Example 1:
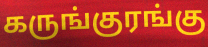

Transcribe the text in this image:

கருங்குரங்கு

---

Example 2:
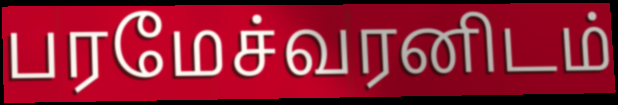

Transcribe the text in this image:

பரமேச்வரனிடம்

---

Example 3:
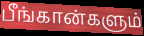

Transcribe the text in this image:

பீங்கான்களும்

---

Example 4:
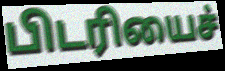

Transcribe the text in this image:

பிடரியைச்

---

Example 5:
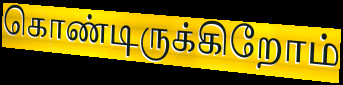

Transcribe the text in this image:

கொண்டிருக்கிறோம்